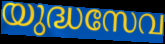
യുദ്ധസേവ